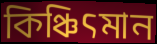
কিঞ্চিৎমান